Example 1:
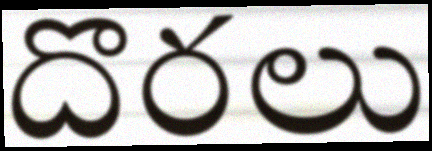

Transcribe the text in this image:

దొరలు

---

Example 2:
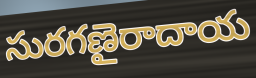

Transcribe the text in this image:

సురగణైరాదాయ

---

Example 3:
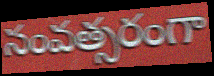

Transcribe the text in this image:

సంవత్సరంగా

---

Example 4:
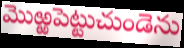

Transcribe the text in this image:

మొఱ్ఱపెట్టుచుండెను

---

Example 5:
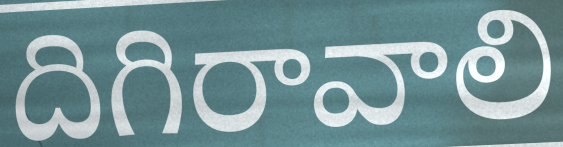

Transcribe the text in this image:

దిగిరావాలి